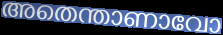
അതെന്താണാവോ